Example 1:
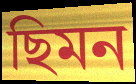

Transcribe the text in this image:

ছিমন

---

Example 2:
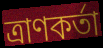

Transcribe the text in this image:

ত্ৰাণকৰ্তা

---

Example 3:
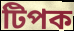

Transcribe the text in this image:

টিপক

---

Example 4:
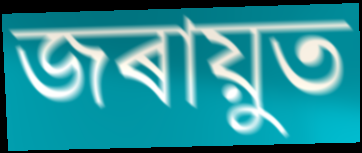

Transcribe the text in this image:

জৰায়ুত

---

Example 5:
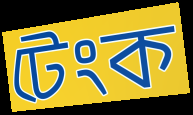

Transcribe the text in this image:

টেংক